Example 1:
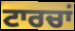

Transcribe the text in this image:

ਟਾਰਚਾਂ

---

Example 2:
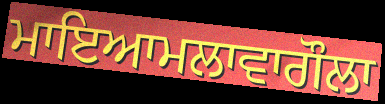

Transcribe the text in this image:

ਮਾਇਆਮਲਾਵਾਗੌਲਾ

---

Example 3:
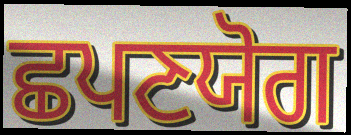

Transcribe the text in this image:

ਛਪਣਯੋਗ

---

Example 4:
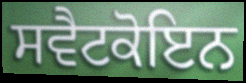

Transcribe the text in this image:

ਸਵੈਟਕੋਇਨ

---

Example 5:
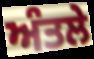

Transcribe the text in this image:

ਅੰਤਲੇ